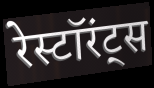
रेस्टॉरंट्‌स